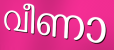
വീണാ